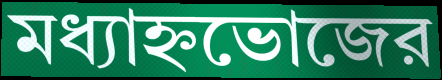
মধ্যাহ্নভোজের